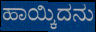
ಹಾಯ್ಕಿದನು